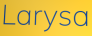
Larysa